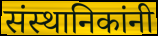
संस्थानिकांनी